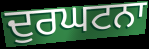
ਦੁਰਘਟਨਾ